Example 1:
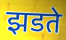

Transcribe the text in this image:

झडते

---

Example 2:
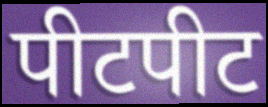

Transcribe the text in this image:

पीटपीट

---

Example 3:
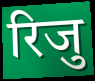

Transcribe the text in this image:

रिजु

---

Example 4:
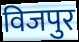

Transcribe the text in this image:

विजपुर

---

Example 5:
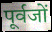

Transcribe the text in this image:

पूर्वजों